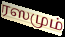
ரஸமும்